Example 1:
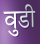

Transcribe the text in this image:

वुडी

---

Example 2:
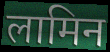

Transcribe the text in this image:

लामिन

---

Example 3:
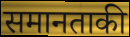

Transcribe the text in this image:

समानताकी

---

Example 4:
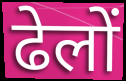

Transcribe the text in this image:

ढेलों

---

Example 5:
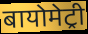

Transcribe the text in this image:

बायोमेट्री